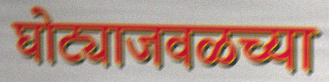
घोट्याजवळच्या